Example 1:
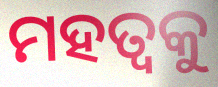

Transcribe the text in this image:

ମହତ୍ଵକୁ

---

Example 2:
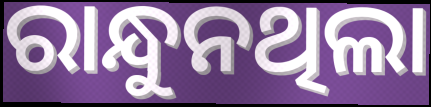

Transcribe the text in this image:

ରାନ୍ଧୁନଥିଲା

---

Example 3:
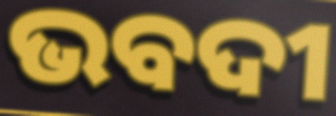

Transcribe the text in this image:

ଭବଦୀ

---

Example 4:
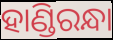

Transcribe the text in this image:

ହାଣ୍ଡିରନ୍ଧା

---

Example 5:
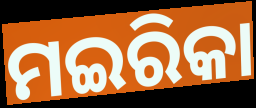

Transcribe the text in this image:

ମଇରିକା